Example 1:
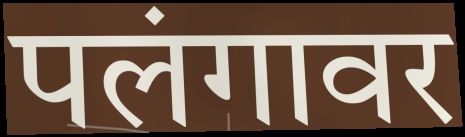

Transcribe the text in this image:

पलंगावर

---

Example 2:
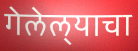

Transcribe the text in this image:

गेलेल्याचा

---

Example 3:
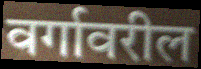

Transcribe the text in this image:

वर्गावरील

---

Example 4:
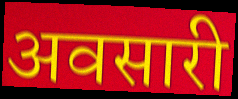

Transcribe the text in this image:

अवसारी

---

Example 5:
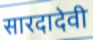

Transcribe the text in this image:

सारदादेवी